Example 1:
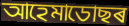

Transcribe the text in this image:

আহেমাডোছৰ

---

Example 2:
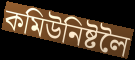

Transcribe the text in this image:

কমিউনিষ্টলৈ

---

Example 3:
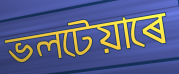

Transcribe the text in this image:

ভলটেয়াৰে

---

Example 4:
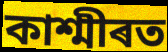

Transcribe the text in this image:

কাশ্মীৰত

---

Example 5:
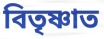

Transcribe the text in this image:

বিতৃষ্ণাত